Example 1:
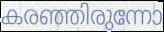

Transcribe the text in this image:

കരഞ്ഞിരുന്നോ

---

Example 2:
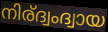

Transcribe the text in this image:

നിര്ദ്വംദ്വായ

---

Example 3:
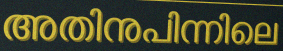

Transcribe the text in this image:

അതിനുപിന്നിലെ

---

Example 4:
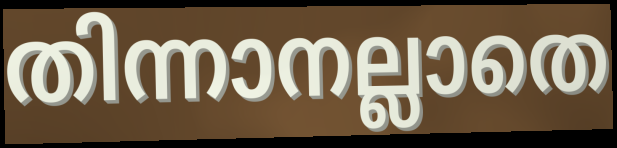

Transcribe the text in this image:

തിന്നാനല്ലാതെ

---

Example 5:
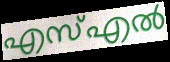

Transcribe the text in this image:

എസ്എൽ